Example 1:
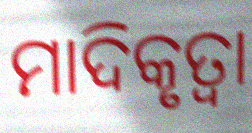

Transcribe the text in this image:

ମାଦିକୃତ୍ୱା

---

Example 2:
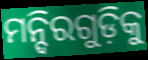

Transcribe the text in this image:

ମନ୍ଦିରଗୁଡ଼ିକୁ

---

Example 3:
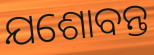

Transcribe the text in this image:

ଯଶୋବନ୍ତ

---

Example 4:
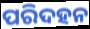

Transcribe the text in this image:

ପରିଦହନ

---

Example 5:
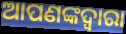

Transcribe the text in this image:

ଆପଣଙ୍କଦ୍ବାରା